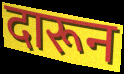
दारून